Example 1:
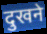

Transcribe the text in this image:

दुखने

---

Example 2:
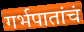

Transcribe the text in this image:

गर्भपातांचं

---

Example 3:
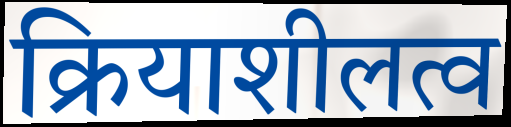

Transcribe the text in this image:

क्रियाशीलत्व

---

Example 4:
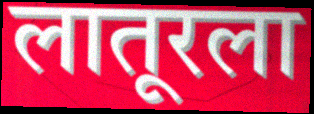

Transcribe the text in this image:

लातूरला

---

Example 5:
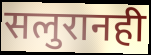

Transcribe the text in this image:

सलुरानही